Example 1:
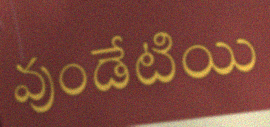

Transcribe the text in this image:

వుండేటియి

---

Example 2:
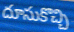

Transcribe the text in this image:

దూసుకొచ్చి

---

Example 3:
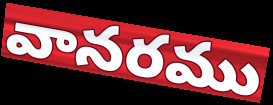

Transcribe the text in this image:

వానరము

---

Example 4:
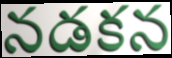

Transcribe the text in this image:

నడకన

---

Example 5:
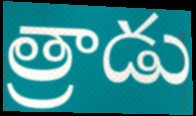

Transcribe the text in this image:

త్రాడు